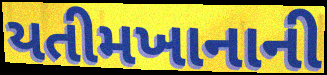
યતીમખાનાની